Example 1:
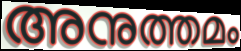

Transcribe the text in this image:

അനുത്തമം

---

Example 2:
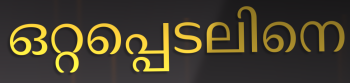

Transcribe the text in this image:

ഒറ്റപ്പെടലിനെ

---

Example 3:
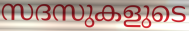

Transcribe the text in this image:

സദസുകളുടെ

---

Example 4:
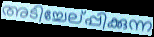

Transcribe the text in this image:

അടിച്ചേല്പ്പിക്കുന്ന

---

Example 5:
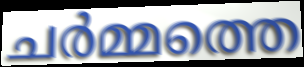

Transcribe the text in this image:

ചർമ്മത്തെ